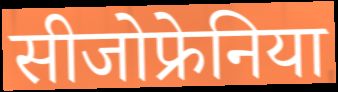
सीजोफ्रेनिया